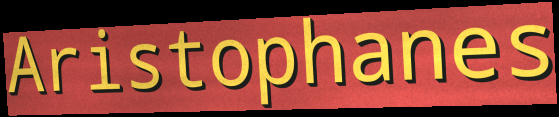
Aristophanes